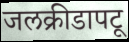
जलक्रीडापटू